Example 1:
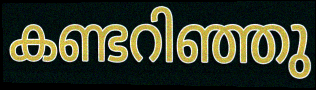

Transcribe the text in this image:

കണ്ടറിഞ്ഞു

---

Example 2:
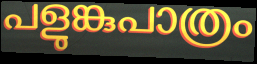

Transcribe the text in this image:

പളുങ്കുപാത്രം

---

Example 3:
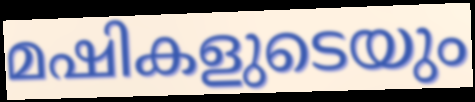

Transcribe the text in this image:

മഷികളുടെയും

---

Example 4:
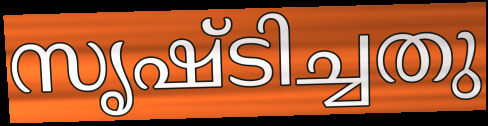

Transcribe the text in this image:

സൃഷ്ടിച്ചതു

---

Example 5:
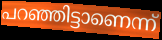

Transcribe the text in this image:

പറഞ്ഞിട്ടാണെന്ന്